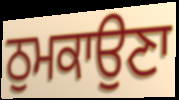
ਠੁਮਕਾਉਣਾ